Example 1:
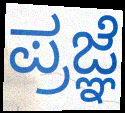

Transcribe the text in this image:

ಪ್ರಜ್ಞೆ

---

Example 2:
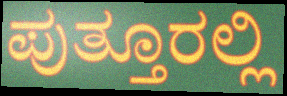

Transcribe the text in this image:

ಪುತ್ತೂರಲ್ಲಿ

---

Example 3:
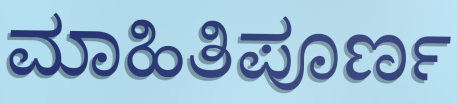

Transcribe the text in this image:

ಮಾಹಿತಿಪೂರ್ಣ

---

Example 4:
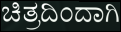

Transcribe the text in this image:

ಚಿತ್ರದಿಂದಾಗಿ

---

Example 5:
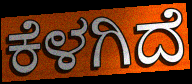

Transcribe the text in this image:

ಕೆಳಗಿದೆ